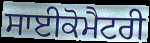
ਸਾਈਕੋਮੈਟਰੀ